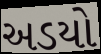
અડયો